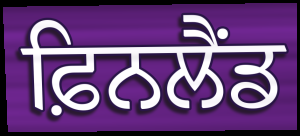
ਫ਼ਿਨਲੈਂਡ